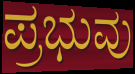
ಪ್ರಭುವು